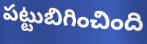
పట్టుబిగించింది